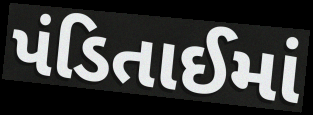
પંડિતાઈમાં